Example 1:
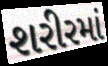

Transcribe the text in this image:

શરીરમાં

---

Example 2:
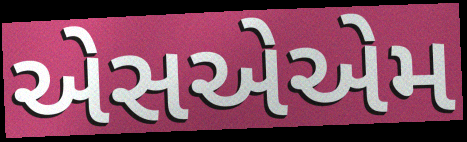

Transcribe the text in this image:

એસએએમ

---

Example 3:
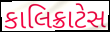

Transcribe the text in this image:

કાલિક્રાટેસ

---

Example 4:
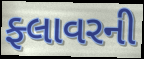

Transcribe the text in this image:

ફ્લાવરની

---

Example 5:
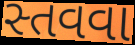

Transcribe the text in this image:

સ્તવવા